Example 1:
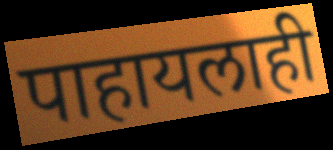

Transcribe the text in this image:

पाहायलाही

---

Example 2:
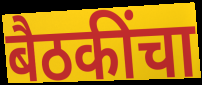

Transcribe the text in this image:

बैठकींचा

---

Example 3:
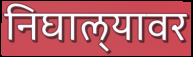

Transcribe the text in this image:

निघाल्यावर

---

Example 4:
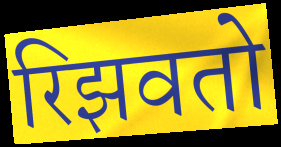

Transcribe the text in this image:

रिझवतो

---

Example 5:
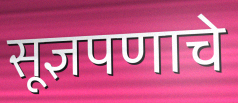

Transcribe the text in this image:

सूज्ञपणाचे